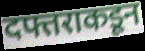
दफ्तराकडून